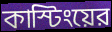
কাস্টিংয়ের